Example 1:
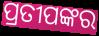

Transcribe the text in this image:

ପ୍ରତୀପଙ୍କର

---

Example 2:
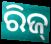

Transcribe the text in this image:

ରିଜ୍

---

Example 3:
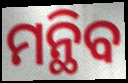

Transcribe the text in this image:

ମନ୍ଥିବ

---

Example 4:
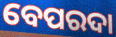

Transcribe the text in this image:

ବେପରଦା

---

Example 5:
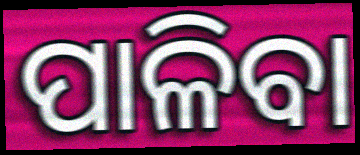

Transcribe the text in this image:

ପାଳିବା